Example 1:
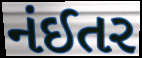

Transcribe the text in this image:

નંઈતર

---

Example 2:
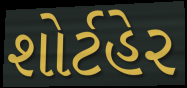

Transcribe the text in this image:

શોર્ટહેર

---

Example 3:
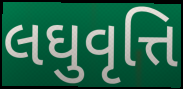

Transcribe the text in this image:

લઘુવૃત્તિ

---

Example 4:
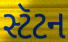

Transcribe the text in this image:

સ્ટૅટન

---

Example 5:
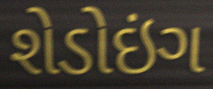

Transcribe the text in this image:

શેડોઇંગ